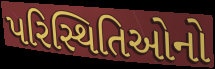
પરિસ્થિતિઓનો